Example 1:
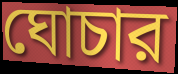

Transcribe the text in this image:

ঘোচার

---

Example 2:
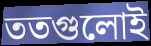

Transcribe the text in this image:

ততগুলোই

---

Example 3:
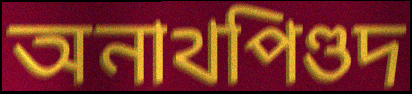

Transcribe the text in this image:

অনাথপিণ্ডদ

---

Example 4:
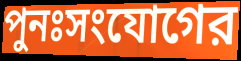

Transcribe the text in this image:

পুনঃসংযোগের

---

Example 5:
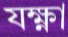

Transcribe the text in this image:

যক্ষ্ণা